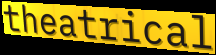
theatrical